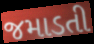
જમાડતી